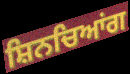
ਸ਼ਿਨਚਿਆਂਗ